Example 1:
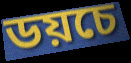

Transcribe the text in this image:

ডয়চে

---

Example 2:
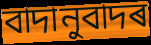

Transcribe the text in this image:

বাদানুবাদৰ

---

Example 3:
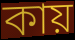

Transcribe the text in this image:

কায়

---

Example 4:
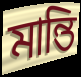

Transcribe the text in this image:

মান্তি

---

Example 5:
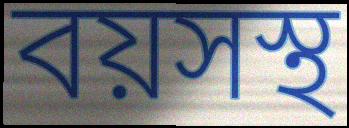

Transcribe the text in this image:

বয়সস্থ